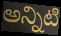
అన్నిటి